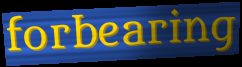
forbearing